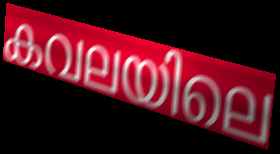
കവലയിലെ